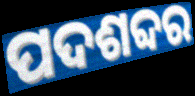
ପଦଶବ୍ଦର